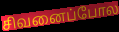
சிவனைப்போல